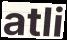
atli